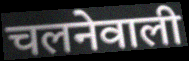
चलनेवाली